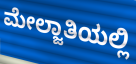
ಮೇಲ್ಜಾತಿಯಲ್ಲಿ